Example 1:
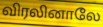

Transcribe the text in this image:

விரலினாலே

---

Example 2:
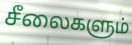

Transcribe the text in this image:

சீலைகளும்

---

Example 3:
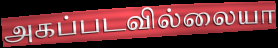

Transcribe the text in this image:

அகப்படவில்லையா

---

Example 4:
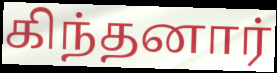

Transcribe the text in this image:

கிந்தனார்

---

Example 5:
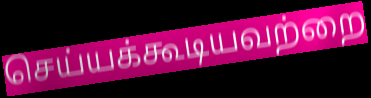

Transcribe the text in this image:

செய்யக்கூடியவற்றை